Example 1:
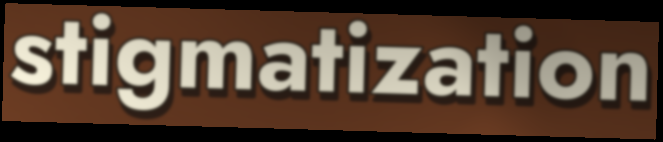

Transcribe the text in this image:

stigmatization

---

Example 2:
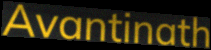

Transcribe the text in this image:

Avantinath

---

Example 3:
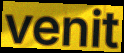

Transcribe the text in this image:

venit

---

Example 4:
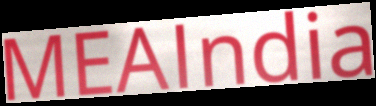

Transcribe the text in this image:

MEAIndia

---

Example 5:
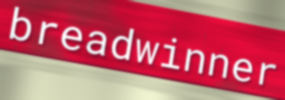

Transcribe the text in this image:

breadwinner